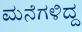
ಮನೆಗಳಿದ್ದ